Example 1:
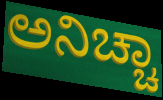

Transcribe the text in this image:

ಅನಿಚ್ಚಾ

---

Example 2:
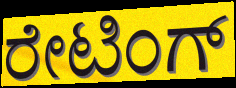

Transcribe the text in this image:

ರೇಟಿಂಗ್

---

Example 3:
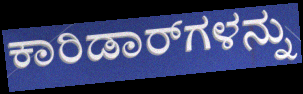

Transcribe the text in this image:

ಕಾರಿಡಾರ್‌ಗಳನ್ನು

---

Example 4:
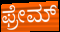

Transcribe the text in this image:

ಫ್ರೇಮ್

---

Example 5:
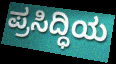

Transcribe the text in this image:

ಪ್ರಸಿದ್ಧಿಯ